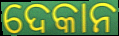
ଦେକାନ